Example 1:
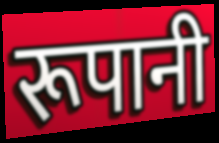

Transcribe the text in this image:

रूपानी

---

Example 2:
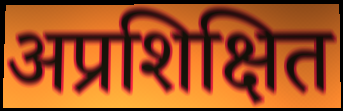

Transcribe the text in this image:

अप्रशिक्षित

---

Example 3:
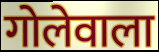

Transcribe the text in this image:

गोलेवाला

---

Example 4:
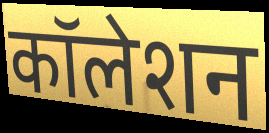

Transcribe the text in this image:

कॉलेशन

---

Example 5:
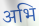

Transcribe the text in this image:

अभि